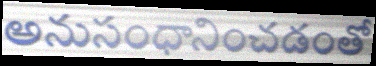
అనుసంధానించడంతో